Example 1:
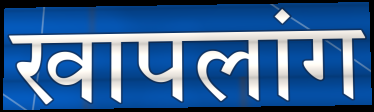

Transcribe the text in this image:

खापलांग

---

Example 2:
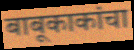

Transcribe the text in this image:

बाबूकाकांचा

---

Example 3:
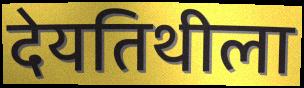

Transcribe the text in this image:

देयतिथीला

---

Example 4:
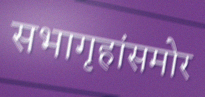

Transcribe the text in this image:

सभागृहांसमोर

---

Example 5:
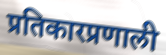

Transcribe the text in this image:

प्रतिकारप्रणाली